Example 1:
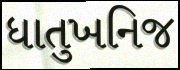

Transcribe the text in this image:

ધાતુખનિજ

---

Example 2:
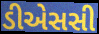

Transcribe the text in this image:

ડીએસસી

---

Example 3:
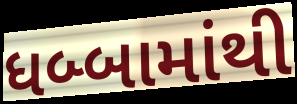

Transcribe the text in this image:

ધબ્બામાંથી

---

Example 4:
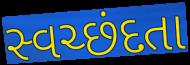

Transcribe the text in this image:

સ્વચ્છંદતા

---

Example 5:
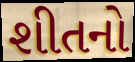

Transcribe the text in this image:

શીતનો